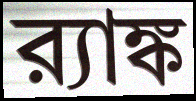
র‍্যাঙ্ক